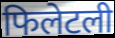
फिलेटली